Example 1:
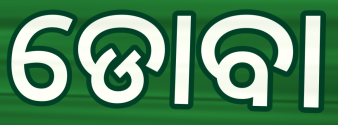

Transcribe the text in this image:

ଡୋବା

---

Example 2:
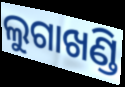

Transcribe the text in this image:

ଲୁଗାଖଣ୍ଡି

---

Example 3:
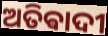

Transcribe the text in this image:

ଅତିଵାଦୀ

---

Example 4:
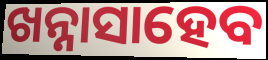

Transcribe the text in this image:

ଖନ୍ନାସାହେବ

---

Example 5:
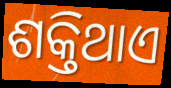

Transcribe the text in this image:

ଶକ୍ତିଥାଏ